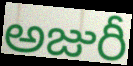
అజురీ